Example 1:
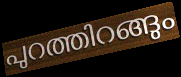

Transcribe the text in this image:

പുറത്തിറങ്ങും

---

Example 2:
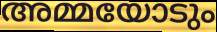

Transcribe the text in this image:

അമ്മയോടും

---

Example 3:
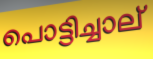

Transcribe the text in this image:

പൊട്ടിച്ചാല്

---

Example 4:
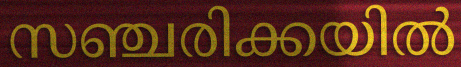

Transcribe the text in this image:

സഞ്ചരിക്കയിൽ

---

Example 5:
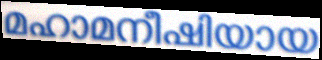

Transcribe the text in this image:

മഹാമനീഷിയായ